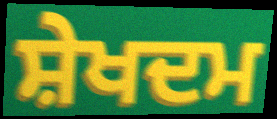
ਸ਼ੇਖਦਮ